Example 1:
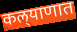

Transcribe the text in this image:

कल्याणात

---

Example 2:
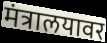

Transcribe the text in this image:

मंत्रालयावर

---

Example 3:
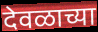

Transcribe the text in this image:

देवळाच्या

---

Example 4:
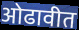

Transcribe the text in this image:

ओढावीत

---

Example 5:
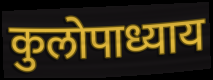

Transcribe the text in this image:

कुलोपाध्याय